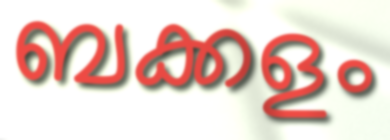
ബക്കളം